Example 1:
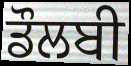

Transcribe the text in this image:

ਡੌਲਬੀ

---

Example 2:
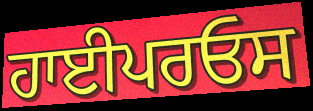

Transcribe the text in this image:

ਹਾਈਪਰਓਸ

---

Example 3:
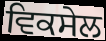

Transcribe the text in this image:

ਵਿਕਸੇਲ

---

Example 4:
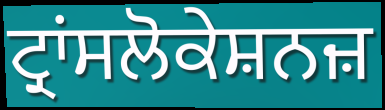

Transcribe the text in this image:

ਟ੍ਰਾਂਸਲੋਕੇਸ਼ਨਜ਼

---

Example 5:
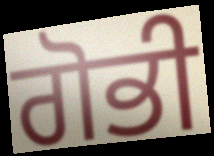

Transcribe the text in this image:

ਗੋਭੀ